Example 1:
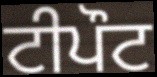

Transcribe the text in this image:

ਟੀਪੌਟ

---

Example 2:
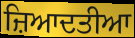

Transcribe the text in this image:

ਜ਼ਿਆਦਤੀਆ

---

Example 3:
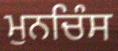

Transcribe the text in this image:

ਮੁਨਚਿੰਸ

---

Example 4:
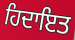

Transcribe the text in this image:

ਹਿਦਾਇਤ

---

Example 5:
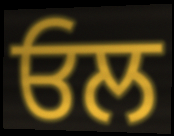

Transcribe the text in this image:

ਓਲ